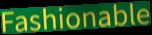
Fashionable